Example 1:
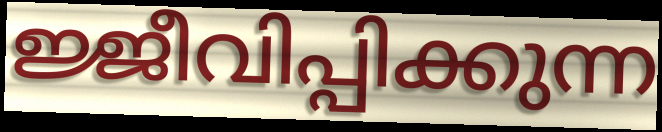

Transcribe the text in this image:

ജ്ജീവിപ്പിക്കുന്ന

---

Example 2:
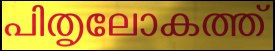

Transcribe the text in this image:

പിതൃലോകത്ത്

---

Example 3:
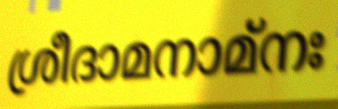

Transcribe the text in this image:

ശ്രീദാമനാമ്നഃ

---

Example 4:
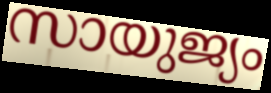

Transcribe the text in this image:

സായുജ്യം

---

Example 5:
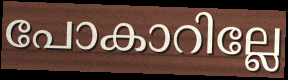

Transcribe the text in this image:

പോകാറില്ലേ